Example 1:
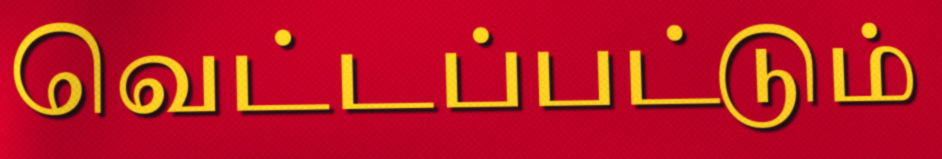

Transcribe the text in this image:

வெட்டப்பட்டும்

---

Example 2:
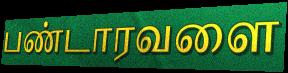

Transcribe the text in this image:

பண்டாரவளை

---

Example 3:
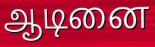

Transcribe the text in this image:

ஆடினை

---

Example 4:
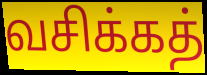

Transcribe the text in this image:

வசிக்கத்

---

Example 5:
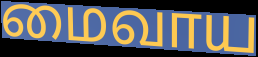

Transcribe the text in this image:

மைவாய